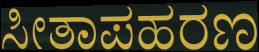
ಸೀತಾಪಹರಣ